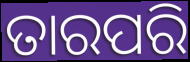
ତାରପରି